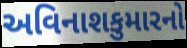
અવિનાશકુમારનો